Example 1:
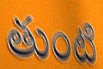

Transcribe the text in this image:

తుంటి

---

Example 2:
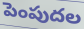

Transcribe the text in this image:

పెంపుదల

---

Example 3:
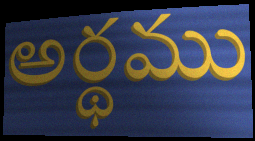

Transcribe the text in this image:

అర్థము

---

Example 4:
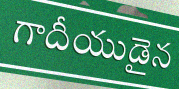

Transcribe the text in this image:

గాదీయుడైన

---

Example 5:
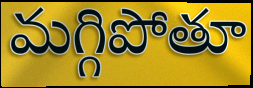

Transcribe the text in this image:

మగ్గిపోతూ